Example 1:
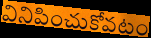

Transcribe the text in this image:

వినిపించుకోవటం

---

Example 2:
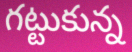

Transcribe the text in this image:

గట్టుకున్న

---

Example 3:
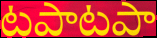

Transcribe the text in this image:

టపాటపా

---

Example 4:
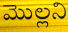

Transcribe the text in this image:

మొల్లని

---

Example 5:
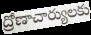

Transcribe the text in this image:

ద్రోణాచార్యులకు